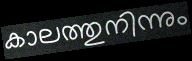
കാലത്തുനിന്നും